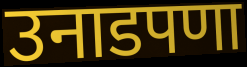
उनाडपणा